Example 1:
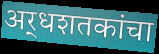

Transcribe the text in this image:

अर्धशतकांचा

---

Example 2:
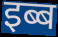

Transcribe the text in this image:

इब्ब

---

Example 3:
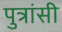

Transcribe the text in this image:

पुत्रांसी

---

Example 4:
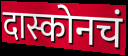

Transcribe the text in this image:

दास्कोनचं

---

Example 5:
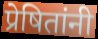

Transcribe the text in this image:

प्रेषितांनी